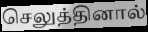
செலுத்தினால்